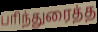
பரிந்துரைத்த